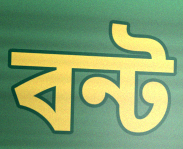
বন্ট